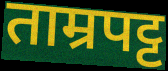
ताम्रपट्ट